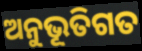
ଅନୁଭୂତିଗତ